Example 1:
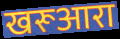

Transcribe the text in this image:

खरूआरा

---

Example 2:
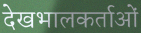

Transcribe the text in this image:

देखभालकर्ताओं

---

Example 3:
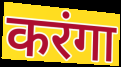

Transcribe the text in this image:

करंगा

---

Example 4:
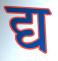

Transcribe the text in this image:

द्य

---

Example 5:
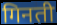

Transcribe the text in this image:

गिनती